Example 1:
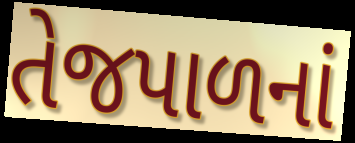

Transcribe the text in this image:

તેજપાળનાં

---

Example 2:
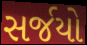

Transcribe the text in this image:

સર્જયો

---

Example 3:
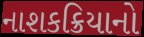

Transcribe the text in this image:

નાશકક્રિયાનો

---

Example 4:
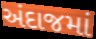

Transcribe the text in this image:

અંદાજમાં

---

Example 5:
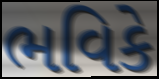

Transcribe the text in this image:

ભવિકે